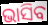
ଭାସିବ